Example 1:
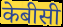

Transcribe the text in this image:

केबीसी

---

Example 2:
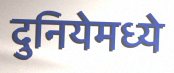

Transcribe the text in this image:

दुनियेमध्ये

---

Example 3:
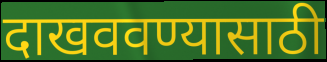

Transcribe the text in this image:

दाखववण्यासाठी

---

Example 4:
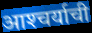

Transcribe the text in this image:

आश्‍चर्याची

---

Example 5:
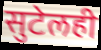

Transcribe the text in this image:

सुटेलही